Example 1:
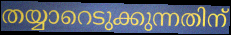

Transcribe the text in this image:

തയ്യാറെടുക്കുന്നതിന്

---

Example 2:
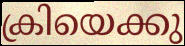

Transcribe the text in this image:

ക്രിയെക്കു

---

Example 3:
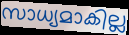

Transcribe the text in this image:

സാധ്യമാകില്ല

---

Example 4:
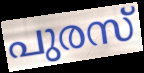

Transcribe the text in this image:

പുരസ്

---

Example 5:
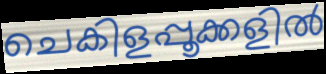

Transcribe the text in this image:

ചെകിളപ്പൂക്കളിൽ